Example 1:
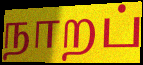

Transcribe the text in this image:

நாறப்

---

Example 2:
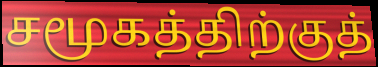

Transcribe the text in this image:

சமூகத்திற்குத்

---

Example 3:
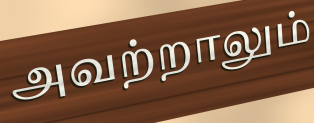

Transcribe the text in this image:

அவற்றாலும்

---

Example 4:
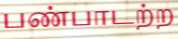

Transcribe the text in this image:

பண்பாடற்ற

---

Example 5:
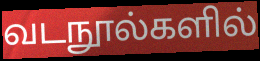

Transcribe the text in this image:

வடநூல்களில்